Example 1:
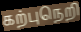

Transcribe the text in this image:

கற்புநெறி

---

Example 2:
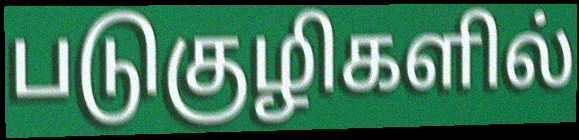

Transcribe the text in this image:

படுகுழிகளில்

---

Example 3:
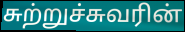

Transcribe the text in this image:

சுற்றுச்சுவரின்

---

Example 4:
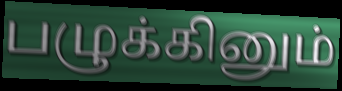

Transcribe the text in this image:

பழுக்கினும்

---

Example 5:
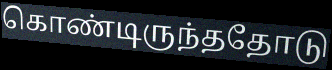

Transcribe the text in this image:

கொண்டிருந்ததோடு